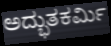
ಅದ್ಭುತಕರ್ಮಿ